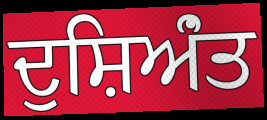
ਦੁਸ਼ਿਅਂੰਤ